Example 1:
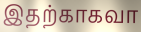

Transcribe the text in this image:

இதற்காகவா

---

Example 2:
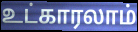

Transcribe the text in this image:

உட்காரலாம்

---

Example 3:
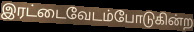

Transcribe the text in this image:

இரட்டைவேடம்போடுகின்ற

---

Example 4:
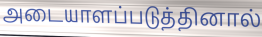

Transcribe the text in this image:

அடையாளப்படுத்தினால்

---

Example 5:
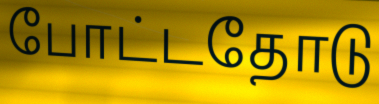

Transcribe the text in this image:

போட்டதோடு